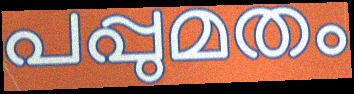
പപ്പുമതം